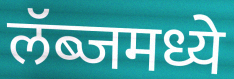
लॅब्जमध्ये